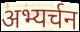
अभ्यर्चन